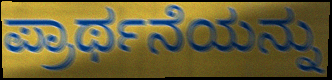
ಪ್ರಾರ್ಥನೆಯನ್ನು